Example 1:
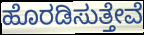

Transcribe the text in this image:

ಹೊರಡಿಸುತ್ತೇವೆ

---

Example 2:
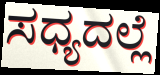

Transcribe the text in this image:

ಸಧ್ಯದಲ್ಲೆ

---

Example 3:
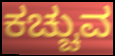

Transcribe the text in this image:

ಕಚ್ಚುವ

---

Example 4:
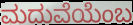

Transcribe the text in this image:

ಮದುವೆಯೆಂಬ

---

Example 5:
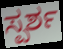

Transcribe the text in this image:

ಸ್ಪರ್ಶ